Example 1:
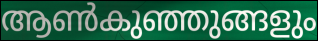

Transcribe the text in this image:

ആൺകുഞ്ഞുങ്ങളും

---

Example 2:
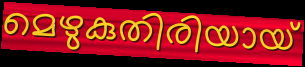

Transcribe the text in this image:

മെഴുകുതിരിയായ്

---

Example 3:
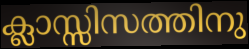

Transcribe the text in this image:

ക്ലാസ്സിസത്തിനു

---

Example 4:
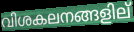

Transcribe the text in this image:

വിശകലനങ്ങളില്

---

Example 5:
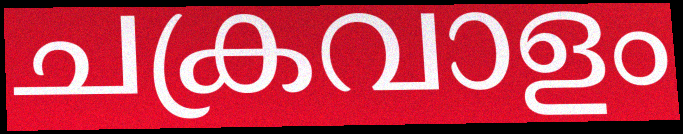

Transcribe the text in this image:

ചക്രവാളം